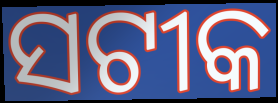
ସଟୀକ